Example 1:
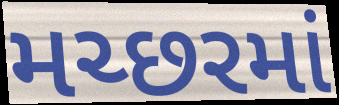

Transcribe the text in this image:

મચ્છરમાં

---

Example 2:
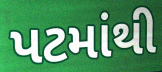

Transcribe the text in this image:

પટમાંથી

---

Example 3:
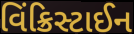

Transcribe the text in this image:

વિંક્રિસ્ટાઈન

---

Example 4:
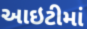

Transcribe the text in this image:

આઇટીમાં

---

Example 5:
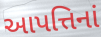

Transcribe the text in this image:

આપત્તિનાં